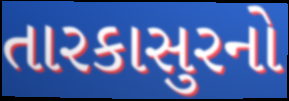
તારકાસુરનો